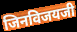
जिनविजयजी